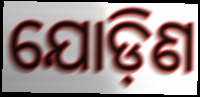
ଯୋଡ଼ିଣ